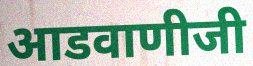
आडवाणीजी